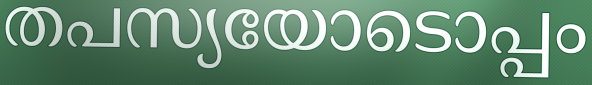
തപസ്യയോടൊപ്പം